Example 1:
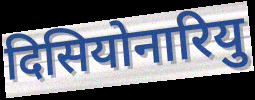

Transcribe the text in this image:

दिसियोनारियु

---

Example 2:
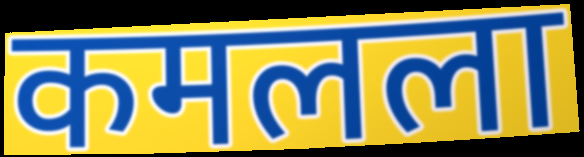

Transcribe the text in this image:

कमलला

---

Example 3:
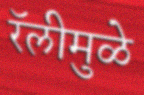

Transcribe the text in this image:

रॅलीमुळे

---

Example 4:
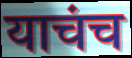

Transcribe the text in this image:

याचंच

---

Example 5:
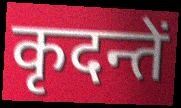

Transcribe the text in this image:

कृदन्तें